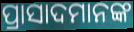
ପ୍ରାସାଦମାନଙ୍କ